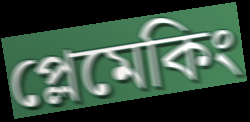
প্লেমেকিং